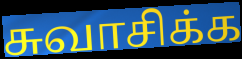
சுவாசிக்க